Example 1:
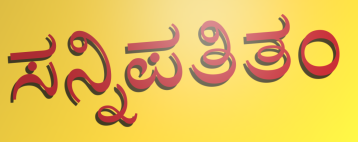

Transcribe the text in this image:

ಸನ್ನಿಪತಿತಂ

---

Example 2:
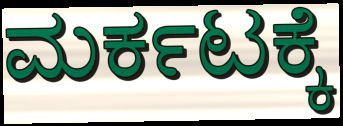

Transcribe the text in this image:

ಮರ್ಕಟಕ್ಕೆ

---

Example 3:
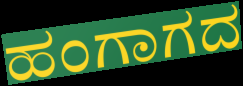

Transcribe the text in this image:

ಹಂಗಾಗದ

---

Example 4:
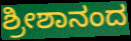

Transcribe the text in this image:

ಶ್ರೀಶಾನಂದ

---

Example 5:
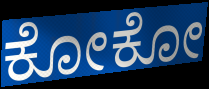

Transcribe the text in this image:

ಕೋಕೋ